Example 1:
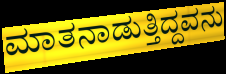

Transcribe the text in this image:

ಮಾತನಾಡುತ್ತಿದ್ದವನು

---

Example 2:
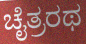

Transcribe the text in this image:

ಚೈತ್ರರಥ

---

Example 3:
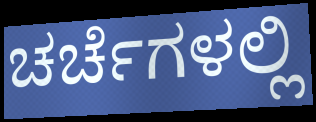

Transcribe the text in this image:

ಚರ್ಚೆಗಳಲ್ಲಿ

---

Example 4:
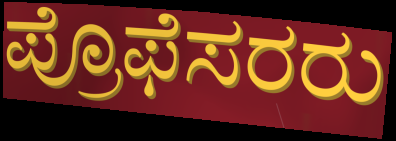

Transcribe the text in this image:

ಪ್ರೊಫೆಸರರು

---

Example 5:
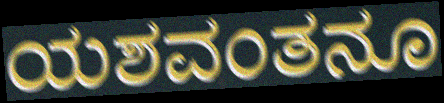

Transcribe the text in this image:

ಯಶವಂತನೂ